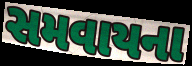
સમવાયના